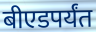
बीएडपर्यंत